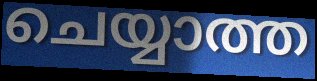
ചെയ്യാത്ത